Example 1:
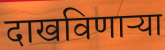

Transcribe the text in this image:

दाखविणाऱ्या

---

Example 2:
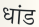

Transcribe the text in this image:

धांड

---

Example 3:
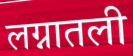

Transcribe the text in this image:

लग्नातली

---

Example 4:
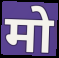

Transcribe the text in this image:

मो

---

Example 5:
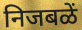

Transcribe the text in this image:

निजबळें